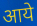
आये